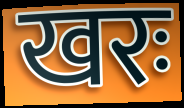
खरः